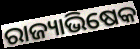
ରାଜ୍ୟାଭିଷେକ